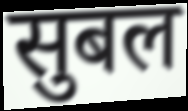
सुबल